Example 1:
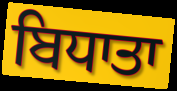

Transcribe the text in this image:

ਬਿਧਾਤਾ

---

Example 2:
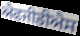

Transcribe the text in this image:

ਐਫਜੀਡੀਐਸ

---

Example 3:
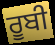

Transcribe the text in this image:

ਰੂਬੀ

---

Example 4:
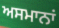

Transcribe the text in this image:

ਅਸਮਾਨਾਂ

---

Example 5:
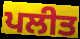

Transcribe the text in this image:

ਪਲੀਤ